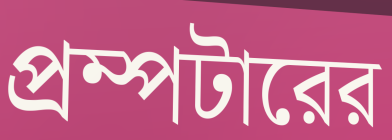
প্রম্পটারের